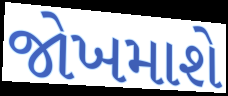
જોખમાશે